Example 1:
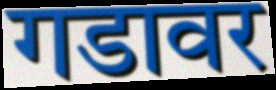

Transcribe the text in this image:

गडावर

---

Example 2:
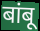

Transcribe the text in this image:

बांबू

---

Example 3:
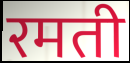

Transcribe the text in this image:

रमती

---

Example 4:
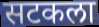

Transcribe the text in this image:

सटकला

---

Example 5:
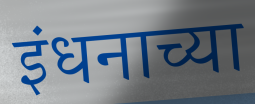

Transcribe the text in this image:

इंधनाच्या